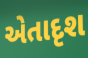
એતાદૃશ